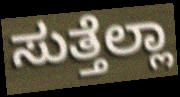
ಸುತ್ತೆಲ್ಲಾ